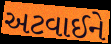
અટવાઈને